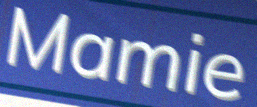
Mamie